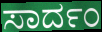
ಸಾರ್ದಂ